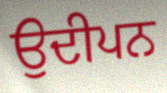
ਉਦੀਪਨ